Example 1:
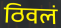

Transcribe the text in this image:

ठिवलं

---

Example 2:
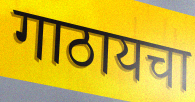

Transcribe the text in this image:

गाठायचा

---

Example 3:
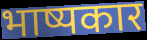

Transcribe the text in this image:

भाष्यकार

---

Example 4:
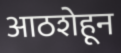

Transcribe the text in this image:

आठशेहून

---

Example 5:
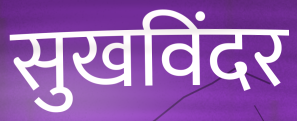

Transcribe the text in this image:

सुखविंदर